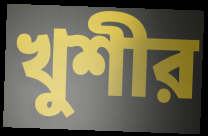
খুশীর